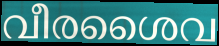
വീരശൈവ